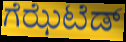
ಗೆಝೆಟೆಡ್